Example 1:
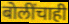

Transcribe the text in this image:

बोलींचाही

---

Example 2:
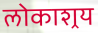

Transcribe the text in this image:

लोकाश्रय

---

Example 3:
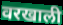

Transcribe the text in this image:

वरखाली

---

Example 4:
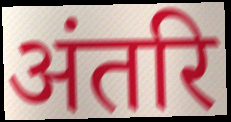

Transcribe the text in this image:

अंतरि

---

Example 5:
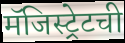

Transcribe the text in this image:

मॅजिस्ट्रेटची